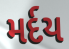
મર્દય